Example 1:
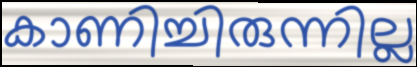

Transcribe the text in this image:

കാണിച്ചിരുന്നില്ല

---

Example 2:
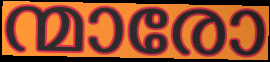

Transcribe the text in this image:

ന്മാരോ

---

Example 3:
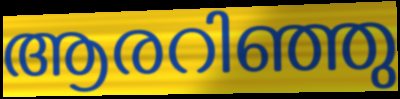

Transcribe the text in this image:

ആരറിഞ്ഞു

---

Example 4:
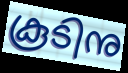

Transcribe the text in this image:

കൂടിനു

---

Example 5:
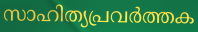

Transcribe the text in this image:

സാഹിത്യപ്രവർത്തക